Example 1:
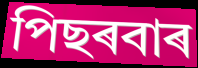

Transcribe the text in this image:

পিছৰবাৰ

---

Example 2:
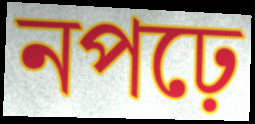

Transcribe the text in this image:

নপঢ়ে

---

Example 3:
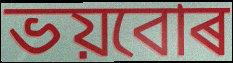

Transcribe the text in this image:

ভয়বোৰ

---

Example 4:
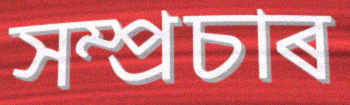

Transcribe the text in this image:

সম্প্ৰচাৰ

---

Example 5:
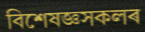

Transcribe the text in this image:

বিশেষজ্ঞসকলৰ